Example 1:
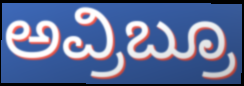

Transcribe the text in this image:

ಅವ್ರಿಬ್ರೂ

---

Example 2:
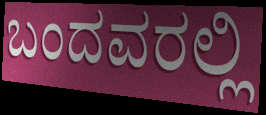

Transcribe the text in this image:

ಬಂದವರಲ್ಲಿ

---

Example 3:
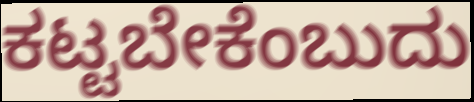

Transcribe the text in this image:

ಕಟ್ಟಬೇಕೆಂಬುದು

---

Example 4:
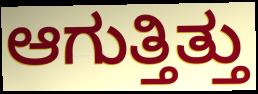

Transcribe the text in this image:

ಆಗುತ್ತಿತ್ತು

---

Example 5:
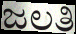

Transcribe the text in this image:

ಜಲತಿ